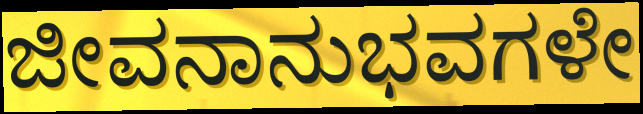
ಜೀವನಾನುಭವಗಳೇ